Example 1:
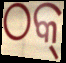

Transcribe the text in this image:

ଠକ୍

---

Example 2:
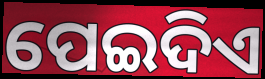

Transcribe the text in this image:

ପେଇଦିଏ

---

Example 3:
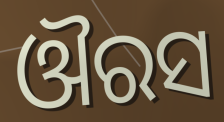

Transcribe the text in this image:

ଔରସ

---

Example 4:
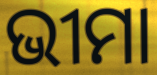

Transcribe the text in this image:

ଭୀମା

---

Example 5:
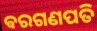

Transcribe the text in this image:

ଵରଗଣପତି